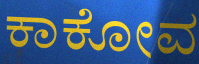
ಕಾಕೋವ